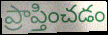
ప్రాప్తించడం